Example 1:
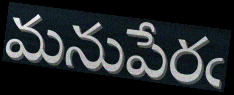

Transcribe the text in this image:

మనుపేరఁ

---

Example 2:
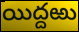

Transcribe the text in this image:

యిద్దఱు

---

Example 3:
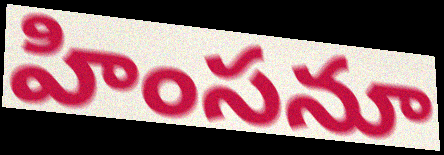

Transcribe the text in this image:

హింసనూ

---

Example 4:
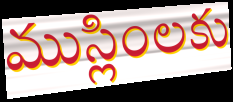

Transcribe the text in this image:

ముస్లింలకు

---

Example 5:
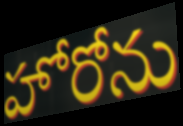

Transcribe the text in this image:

హోరోను